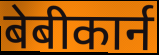
बेबीकार्न